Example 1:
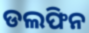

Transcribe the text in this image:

ଡଲଫିନ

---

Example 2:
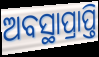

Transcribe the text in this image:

ଅବସ୍ଥାପ୍ରାପ୍ତି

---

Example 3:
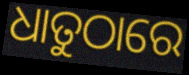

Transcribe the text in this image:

ଧାତୁଠାରେ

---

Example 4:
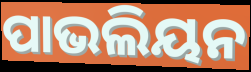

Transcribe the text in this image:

ପାଭଲିୟନ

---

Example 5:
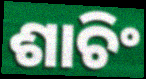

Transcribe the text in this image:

ଶାଚିଂ